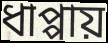
ধাপ্পায়